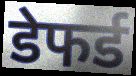
डेफर्ड